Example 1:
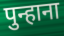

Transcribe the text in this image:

पुन्हाना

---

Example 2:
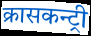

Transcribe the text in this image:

क्रासकन्ट्री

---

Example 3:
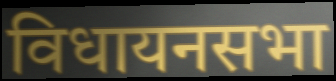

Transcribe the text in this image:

विधायनसभा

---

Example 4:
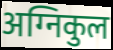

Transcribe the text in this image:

अग्निकुल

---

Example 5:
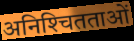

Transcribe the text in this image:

अनिश्‍चितताओं